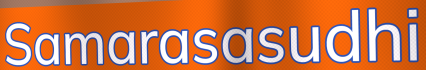
Samarasasudhi